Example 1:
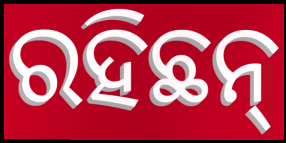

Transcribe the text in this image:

ରହିଛନ୍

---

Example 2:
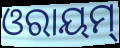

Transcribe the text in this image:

ଓରାୟମ୍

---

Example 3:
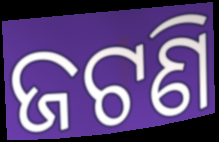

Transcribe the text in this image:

ଜଟଣି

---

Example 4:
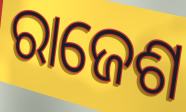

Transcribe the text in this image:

ରାଜେଶ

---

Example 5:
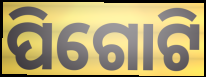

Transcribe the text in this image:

ପିଗୋଟି